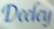
Deeley